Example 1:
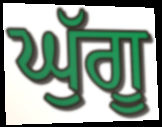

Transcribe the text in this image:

ਘੁੱਗੂ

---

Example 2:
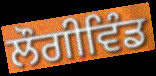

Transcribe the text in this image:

ਲੌਗੀਵਿੰਡ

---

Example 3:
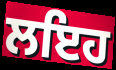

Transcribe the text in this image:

ਲਇਹ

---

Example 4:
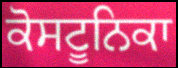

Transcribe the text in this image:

ਕੋਸਟੂਨਿਕਾ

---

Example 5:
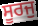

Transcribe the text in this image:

ਸੂਰਜੁ